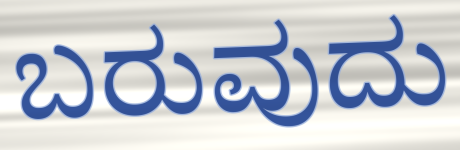
ಬರುವುದು